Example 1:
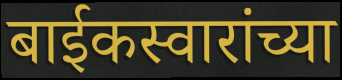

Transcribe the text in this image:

बाईकस्वारांच्या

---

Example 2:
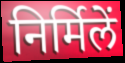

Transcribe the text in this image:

निर्मिलें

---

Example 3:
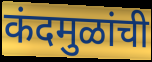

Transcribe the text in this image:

कंदमुळांची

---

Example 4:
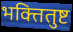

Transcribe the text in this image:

भक्तितुष्ट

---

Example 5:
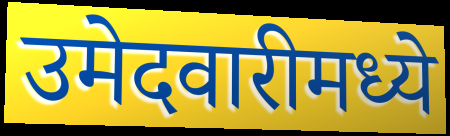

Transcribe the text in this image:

उमेदवारीमध्ये